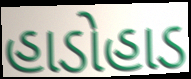
હાડોહાડ